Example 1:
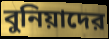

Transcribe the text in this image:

বুনিয়াদের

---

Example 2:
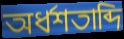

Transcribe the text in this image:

অর্ধশতাব্দি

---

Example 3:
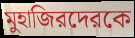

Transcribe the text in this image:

মুহাজিরদেরকে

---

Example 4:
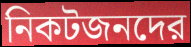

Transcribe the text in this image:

নিকটজনদের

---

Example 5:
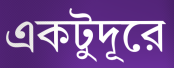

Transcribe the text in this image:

একটুদূরে